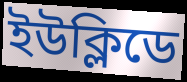
ইউক্লিডে